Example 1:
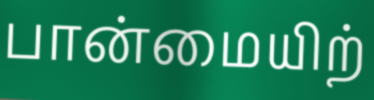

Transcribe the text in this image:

பான்மையிற்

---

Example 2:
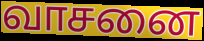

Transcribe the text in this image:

வாசனை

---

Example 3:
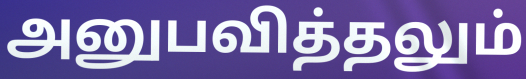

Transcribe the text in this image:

அனுபவித்தலும்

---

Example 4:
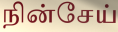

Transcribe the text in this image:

நின்சேய்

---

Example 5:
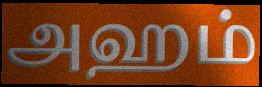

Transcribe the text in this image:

அஹம்